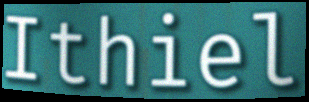
Ithiel